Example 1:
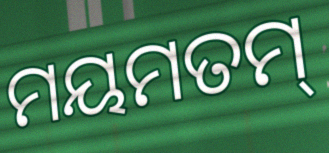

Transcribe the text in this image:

ମୟମତମ୍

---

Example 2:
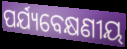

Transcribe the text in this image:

ପର୍ଯ୍ୟବେକ୍ଷଣୀୟ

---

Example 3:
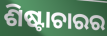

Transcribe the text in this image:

ଶିଷ୍ଟାଚାରର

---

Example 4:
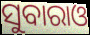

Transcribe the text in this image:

ସୁବାରାଓ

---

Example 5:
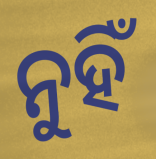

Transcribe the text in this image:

ନୁହିଁ